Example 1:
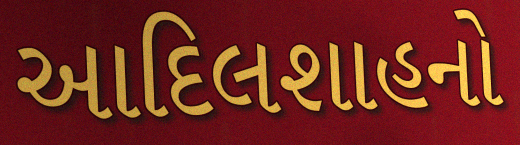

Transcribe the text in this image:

આદિલશાહનો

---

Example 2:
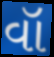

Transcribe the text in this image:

વૉ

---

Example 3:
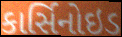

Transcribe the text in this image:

કાર્સિનોઇડ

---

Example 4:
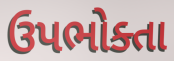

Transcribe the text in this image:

ઉપભોક્તા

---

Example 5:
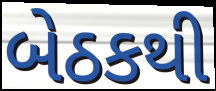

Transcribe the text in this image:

બેઠકથી